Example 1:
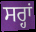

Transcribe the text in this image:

ਸਰ੍ਹਾਂ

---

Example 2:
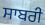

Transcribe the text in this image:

ਸਾਬਰੀ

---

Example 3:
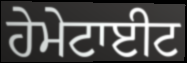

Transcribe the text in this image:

ਹੇਮੇਟਾਈਟ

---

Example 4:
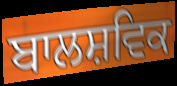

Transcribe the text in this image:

ਬਾਲਸ਼ਵਿਕ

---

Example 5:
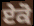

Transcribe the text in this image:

ਏਕੋ